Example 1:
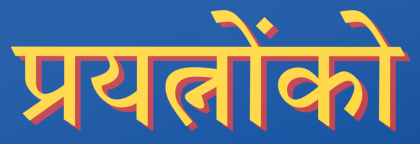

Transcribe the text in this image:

प्रयत्नोंको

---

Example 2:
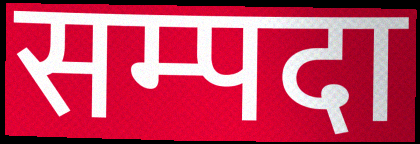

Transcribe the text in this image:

सम्पदा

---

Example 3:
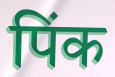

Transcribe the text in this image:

पिंक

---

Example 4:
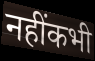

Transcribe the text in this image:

नहींकभी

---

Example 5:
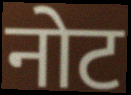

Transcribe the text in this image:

नोट